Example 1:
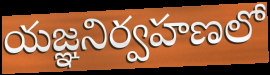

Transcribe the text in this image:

యజ్ఞనిర్వహణలో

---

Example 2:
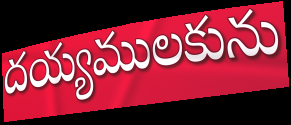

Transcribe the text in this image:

దయ్యములకును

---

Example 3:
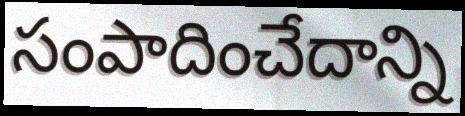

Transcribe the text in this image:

సంపాదించేదాన్ని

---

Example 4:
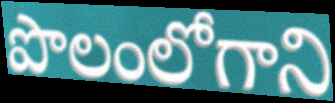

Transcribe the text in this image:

పొలంలోగాని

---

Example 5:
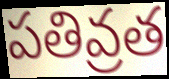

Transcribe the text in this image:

పతివ్రత